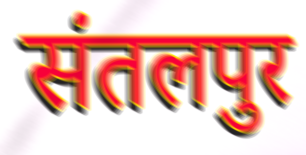
संतलपुर